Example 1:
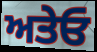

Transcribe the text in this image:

ਅਤੇਓ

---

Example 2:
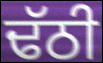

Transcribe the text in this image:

ਢੱਠੀ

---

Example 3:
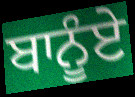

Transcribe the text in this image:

ਬਾਨੂੰਏ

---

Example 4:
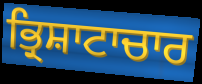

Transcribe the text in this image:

ਭ੍ਰਿਸ਼ਾਟਾਚਾਰ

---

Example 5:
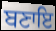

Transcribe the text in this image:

ਬਣਾਇ